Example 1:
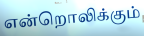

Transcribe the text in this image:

என்றொலிக்கும்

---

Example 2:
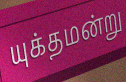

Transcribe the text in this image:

யுக்தமன்று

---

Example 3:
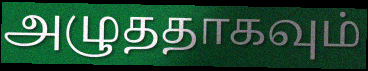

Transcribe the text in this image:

அழுததாகவும்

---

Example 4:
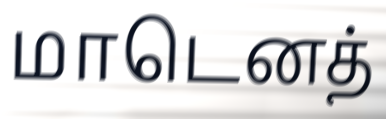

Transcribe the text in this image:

மாடெனத்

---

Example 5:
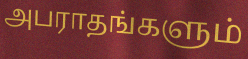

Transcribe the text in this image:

அபராதங்களும்